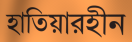
হাতিয়ারহীন